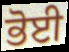
ਭੋਈ